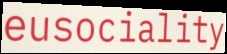
eusociality